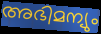
അഭിമന്യും